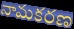
నామకరణ